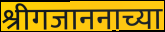
श्रीगजाननाच्या